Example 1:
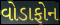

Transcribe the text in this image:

વોડાફોન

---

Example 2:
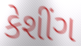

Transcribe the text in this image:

કેશીંગ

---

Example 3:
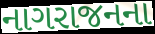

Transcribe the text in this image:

નાગરાજનના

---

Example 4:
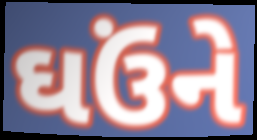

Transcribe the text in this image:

ઘઉંને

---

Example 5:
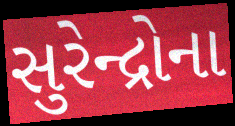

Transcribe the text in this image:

સુરેન્દ્રોના